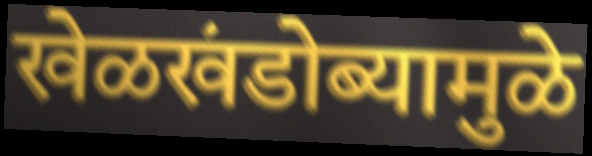
खेळखंडोब्यामुळे